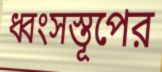
ধ্বংসস্তূপের